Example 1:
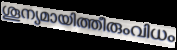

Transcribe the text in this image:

ശൂന്യമായിത്തീരുംവിധം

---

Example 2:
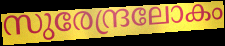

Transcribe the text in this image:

സുരേന്ദ്രലോകം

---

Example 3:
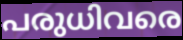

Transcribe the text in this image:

പരുധിവരെ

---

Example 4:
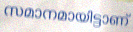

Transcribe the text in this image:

സമാനമായിട്ടാണ്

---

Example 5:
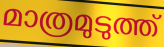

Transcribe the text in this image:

മാത്രമുടുത്ത്